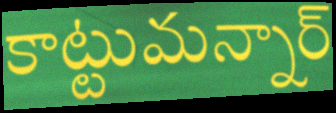
కాట్టుమన్నార్